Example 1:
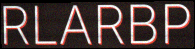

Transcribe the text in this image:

RLARBP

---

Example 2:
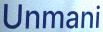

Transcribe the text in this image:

Unmani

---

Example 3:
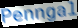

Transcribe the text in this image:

Penngal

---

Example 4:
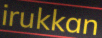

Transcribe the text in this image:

irukkan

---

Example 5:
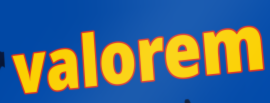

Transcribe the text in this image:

valorem